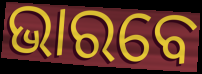
ଭାରବେ